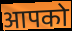
आपको